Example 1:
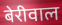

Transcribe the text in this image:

बेरीवाल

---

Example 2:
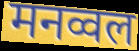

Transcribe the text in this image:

मनव्वल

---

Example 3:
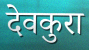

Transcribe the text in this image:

देवकुरा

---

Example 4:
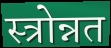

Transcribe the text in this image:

स्त्रोन्नत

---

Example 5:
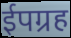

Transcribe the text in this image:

ईपग्रह